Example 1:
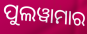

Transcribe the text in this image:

ପୁଲୱାମାର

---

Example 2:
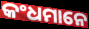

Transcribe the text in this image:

କଂଧମାନେ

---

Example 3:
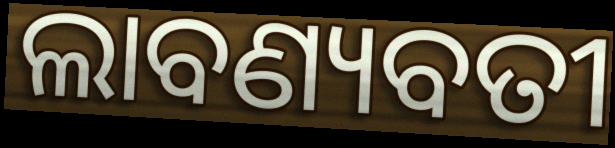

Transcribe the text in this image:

ଲାବଣ୍ୟବତୀ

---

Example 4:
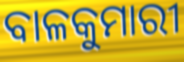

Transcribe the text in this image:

ବାଳକୁମାରୀ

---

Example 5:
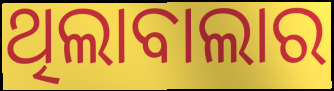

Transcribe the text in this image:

ଥିଲାବାଲାର